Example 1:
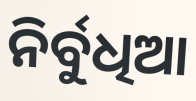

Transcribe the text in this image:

ନିର୍ବୁଧିଆ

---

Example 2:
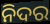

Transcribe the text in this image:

ନିଦର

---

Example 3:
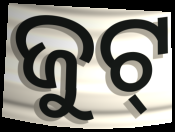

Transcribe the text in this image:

ଜୁଟ୍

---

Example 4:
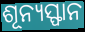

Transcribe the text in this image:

ଶୂନ୍ୟସ୍ଫାନ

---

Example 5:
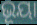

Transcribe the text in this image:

ଭୂୟା